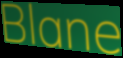
Blane